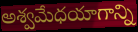
అశ్వమేధయాగాన్ని